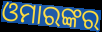
ଓମାରଙ୍କର